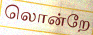
லொன்றே